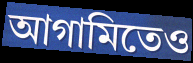
আগামিতেও